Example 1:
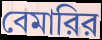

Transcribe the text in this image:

বেমারির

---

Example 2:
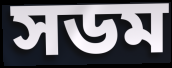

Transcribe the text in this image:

সডম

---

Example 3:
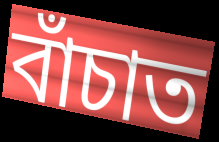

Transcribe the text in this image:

বাঁচাত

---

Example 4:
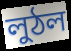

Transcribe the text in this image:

লুঠল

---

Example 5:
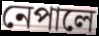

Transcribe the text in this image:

নেপালে